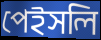
পেইসলি